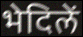
भेदिलें